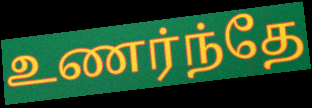
உணர்ந்தே